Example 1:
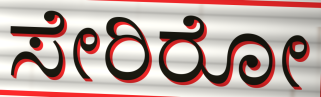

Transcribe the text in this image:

ಸೇರಿರೋ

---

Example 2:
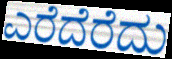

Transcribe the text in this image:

ಎರೆದೆರೆದು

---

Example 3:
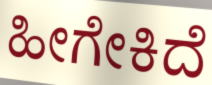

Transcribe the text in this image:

ಹೀಗೇಕಿದೆ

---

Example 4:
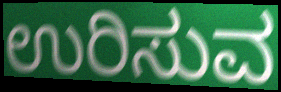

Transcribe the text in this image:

ಉರಿಸುವ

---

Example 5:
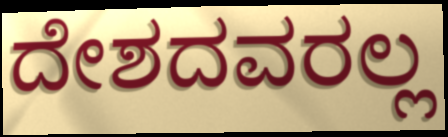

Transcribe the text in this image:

ದೇಶದವರಲ್ಲ